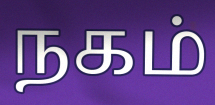
நகம்